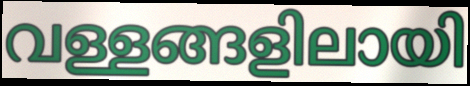
വള്ളങ്ങളിലായി